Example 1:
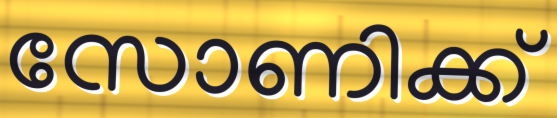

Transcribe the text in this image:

സോണിക്ക്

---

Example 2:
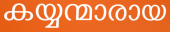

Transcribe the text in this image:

കയ്യന്മാരായ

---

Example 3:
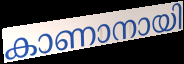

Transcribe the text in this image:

കാണാനായി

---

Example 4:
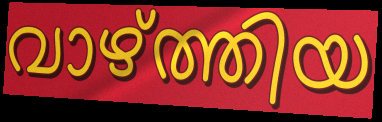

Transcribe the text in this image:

വാഴ്ത്തിയ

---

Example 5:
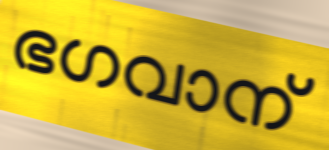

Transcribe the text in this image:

ഭഗവാന്